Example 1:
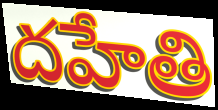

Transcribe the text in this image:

దహేతి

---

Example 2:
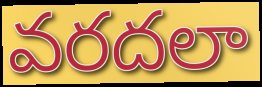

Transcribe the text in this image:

వరదలా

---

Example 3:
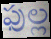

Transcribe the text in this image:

ఫుల్ల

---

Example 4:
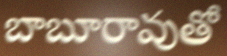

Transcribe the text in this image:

బాబూరావుతో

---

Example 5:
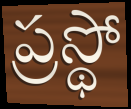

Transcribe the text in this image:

ప్రస్థో